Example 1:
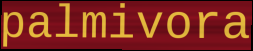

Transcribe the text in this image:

palmivora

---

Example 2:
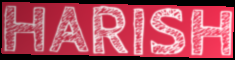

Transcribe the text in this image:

HARISH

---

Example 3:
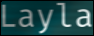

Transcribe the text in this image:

Layla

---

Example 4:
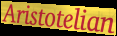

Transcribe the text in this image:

Aristotelian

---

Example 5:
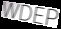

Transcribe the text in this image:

WDEP